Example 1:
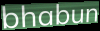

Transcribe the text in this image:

bhabun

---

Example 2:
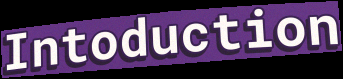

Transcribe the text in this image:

Intoduction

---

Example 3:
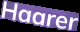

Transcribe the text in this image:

Haarer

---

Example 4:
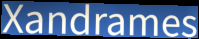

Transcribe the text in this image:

Xandrames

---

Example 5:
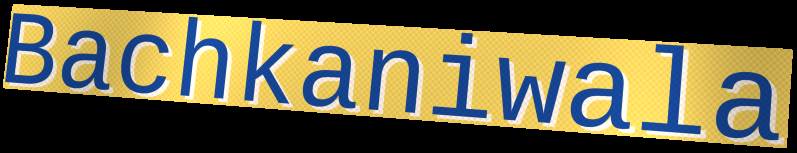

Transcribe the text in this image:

Bachkaniwala